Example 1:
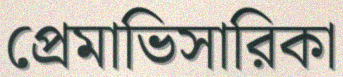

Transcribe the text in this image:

প্রেমাভিসারিকা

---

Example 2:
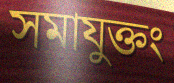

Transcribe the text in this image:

সমাযুক্তং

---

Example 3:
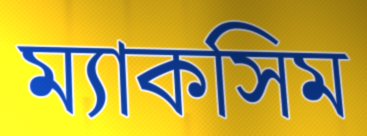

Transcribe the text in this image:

ম্যাকসিম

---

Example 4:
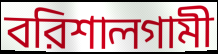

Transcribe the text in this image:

বরিশালগামী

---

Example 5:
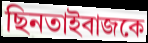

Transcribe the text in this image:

ছিনতাইবাজকে